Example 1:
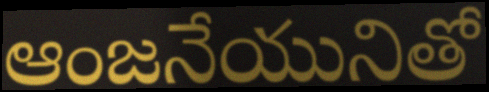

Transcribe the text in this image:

ఆంజనేయునితో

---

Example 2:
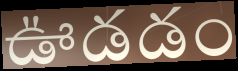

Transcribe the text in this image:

ఊడడం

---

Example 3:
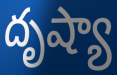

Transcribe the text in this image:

దృష్యా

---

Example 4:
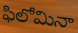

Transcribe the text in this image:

ఫిలోమినా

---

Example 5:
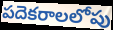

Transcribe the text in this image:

పదెకరాలలోపు